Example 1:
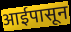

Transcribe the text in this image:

आईपासून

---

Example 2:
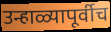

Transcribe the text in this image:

उन्हाळ्यापूर्वीच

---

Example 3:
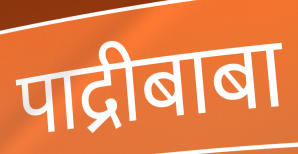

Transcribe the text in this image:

पाद्रीबाबा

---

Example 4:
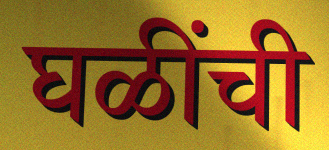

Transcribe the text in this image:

घळींची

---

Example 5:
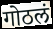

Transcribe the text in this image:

गोठलं